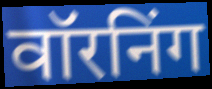
वॉरनिंग